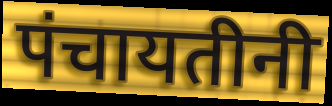
पंचायतीनी